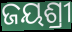
ଜୟଶ୍ରୀ